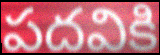
పదవికి